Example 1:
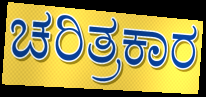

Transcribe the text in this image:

ಚರಿತ್ರಕಾರ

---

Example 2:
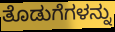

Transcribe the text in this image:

ತೊಡುಗೆಗಳನ್ನು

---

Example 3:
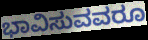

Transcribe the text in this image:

ಭಾವಿಸುವವರೂ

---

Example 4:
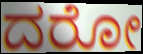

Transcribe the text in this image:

ದರೋ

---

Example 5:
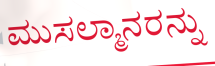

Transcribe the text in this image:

ಮುಸಲ್ಮಾನರನ್ನು